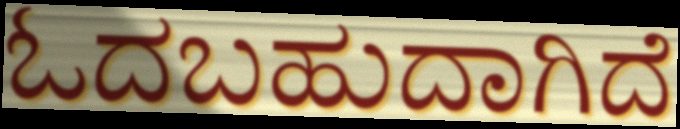
ಓದಬಹುದಾಗಿದೆ